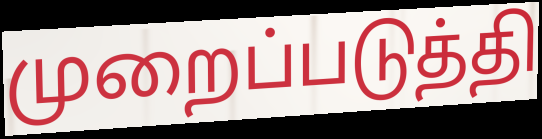
முறைப்படுத்தி